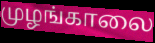
முழங்காலை